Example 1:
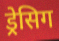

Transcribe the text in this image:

ड्रेसिग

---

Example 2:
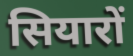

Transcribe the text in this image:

सियारों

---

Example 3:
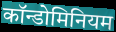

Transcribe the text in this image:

कॉन्डोमिनियम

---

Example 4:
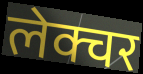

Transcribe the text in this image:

लेक्चर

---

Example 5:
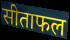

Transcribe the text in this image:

सीताफल